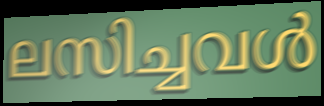
ലസിച്ചവൾ